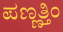
ಪಣ್ಣತ್ತಿಂ